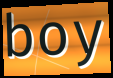
boy